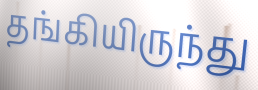
தங்கியிருந்து